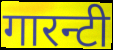
गारन्टी